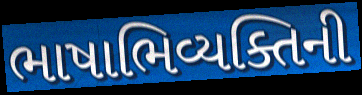
ભાષાભિવ્યક્તિની